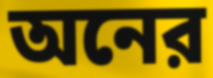
অনের